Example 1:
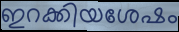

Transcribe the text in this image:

ഇറക്കിയശേഷം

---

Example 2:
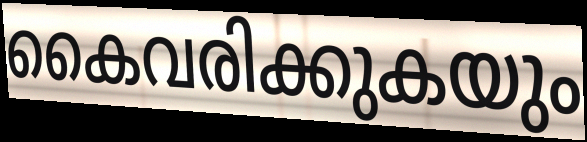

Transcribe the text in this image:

കൈവരിക്കുകയും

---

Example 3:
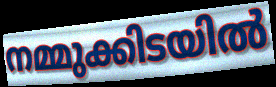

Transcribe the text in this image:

നമ്മുക്കിടയിൽ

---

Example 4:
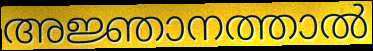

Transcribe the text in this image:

അജ്ഞാനത്താൽ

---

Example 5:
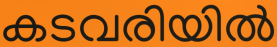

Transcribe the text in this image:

കടവരിയിൽ